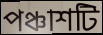
পঞ্চাশটি